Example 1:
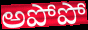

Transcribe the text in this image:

అపోపో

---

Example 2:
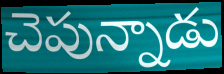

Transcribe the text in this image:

చెపున్నాడు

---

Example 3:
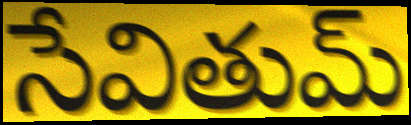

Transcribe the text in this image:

సేవితుమ్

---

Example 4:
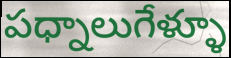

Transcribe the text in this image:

పధ్నాలుగేళ్ళూ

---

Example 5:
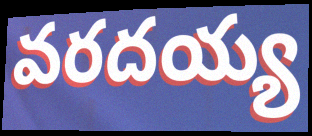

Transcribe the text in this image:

వరదయ్య